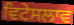
ਵਿਟੇਸਲਾਵ